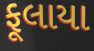
ફૂલાયા